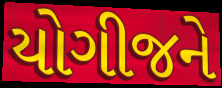
યોગીજને